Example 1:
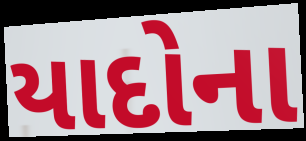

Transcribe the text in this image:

યાદોના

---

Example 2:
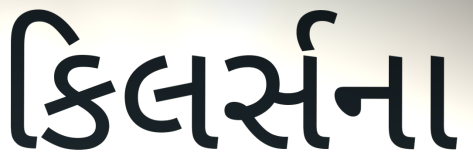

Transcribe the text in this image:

કિલર્સના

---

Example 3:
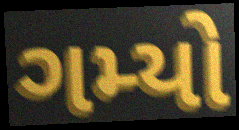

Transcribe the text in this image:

ગમ્યો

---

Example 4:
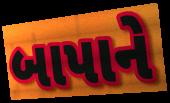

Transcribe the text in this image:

બાપાને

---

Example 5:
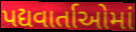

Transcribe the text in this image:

પદ્યવાર્તાઓમાં